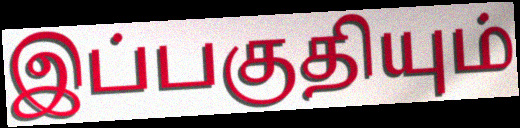
இப்பகுதியும்